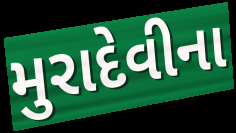
મુરાદેવીના